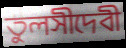
তুলসীদেবী